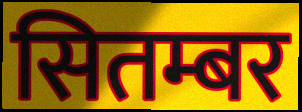
सितम्बर